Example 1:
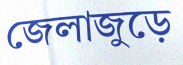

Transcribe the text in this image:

জেলাজুড়ে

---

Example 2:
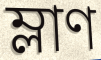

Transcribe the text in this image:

ম্লাণ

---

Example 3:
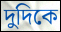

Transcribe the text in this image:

দুদিকে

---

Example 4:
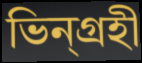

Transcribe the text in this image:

ভিন্গ্রহী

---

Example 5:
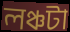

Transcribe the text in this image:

লঞ্চটা